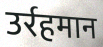
उर्रहमान